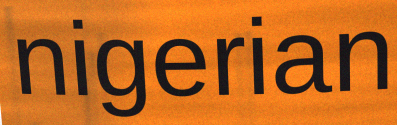
nigerian